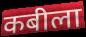
कबीला